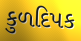
કુળદિપક